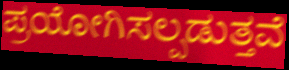
ಪ್ರಯೋಗಿಸಲ್ಪಡುತ್ತವೆ